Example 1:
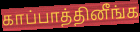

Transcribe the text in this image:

காப்பாத்தினீங்க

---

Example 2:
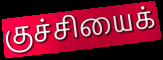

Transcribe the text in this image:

குச்சியைக்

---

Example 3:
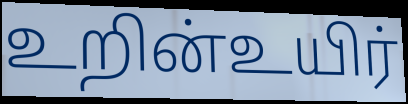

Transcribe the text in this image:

உறின்உயிர்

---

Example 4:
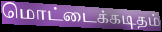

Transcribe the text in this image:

மொட்டைக்கடிதம்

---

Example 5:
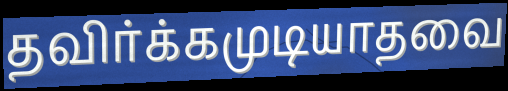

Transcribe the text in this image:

தவிர்க்கமுடியாதவை